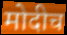
मोदीच